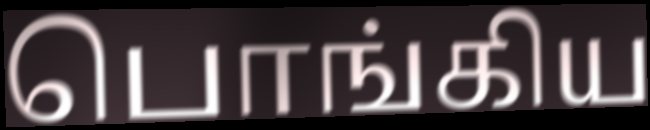
பொங்கிய